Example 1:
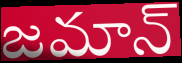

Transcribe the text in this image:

జమాన్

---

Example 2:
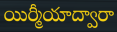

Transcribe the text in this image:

యిర్మీయాద్వారా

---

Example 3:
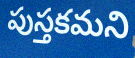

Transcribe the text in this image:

పుస్తకమని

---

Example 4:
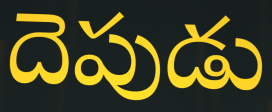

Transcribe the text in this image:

దెపుడు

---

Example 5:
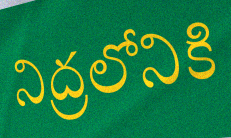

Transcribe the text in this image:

నిద్రలోనికి